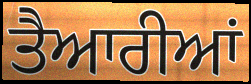
ਤੈਆਰੀਆਂ